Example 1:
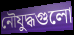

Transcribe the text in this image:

নৌযুদ্ধগুলো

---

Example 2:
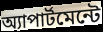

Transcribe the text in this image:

অ্যাপার্টমেন্টে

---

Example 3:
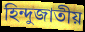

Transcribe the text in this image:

হিন্দুজাতীয়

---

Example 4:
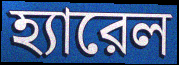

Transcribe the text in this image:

হ্যারেল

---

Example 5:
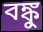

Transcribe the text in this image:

বঙ্কু